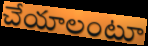
చేయాలంటూ